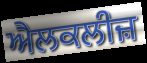
ਐਲਕਲੀਜ਼